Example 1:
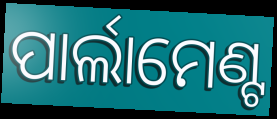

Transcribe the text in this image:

ପାର୍ଲାମେଣ୍ଟ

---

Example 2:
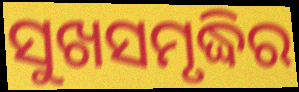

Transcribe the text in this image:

ସୁଖସମୃଦ୍ଧିର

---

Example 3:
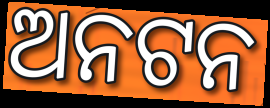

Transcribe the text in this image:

ଅନଟନ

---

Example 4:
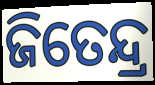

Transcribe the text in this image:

ଜିତେନ୍ଦ୍ର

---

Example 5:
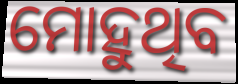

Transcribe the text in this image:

ମୋହୁଥିବ